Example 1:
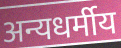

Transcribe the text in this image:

अन्यधर्मीय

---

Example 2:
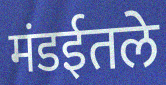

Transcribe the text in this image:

मंडईतले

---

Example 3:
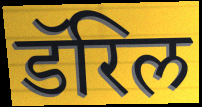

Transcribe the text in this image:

डॅरिल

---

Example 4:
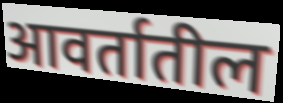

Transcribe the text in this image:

आवर्तातील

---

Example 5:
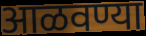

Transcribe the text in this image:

आळवण्या